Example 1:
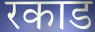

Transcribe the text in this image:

रकाड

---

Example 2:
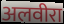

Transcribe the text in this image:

अलवीरा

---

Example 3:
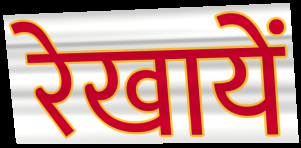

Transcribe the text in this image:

रेखायें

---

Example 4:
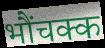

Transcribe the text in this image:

भौंचक्क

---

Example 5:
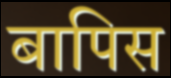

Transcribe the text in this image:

बापिस